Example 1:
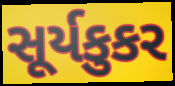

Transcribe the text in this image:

સૂર્યકુકર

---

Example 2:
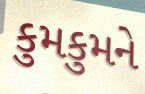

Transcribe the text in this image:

કુમકુમને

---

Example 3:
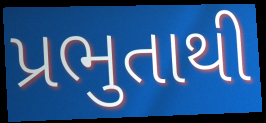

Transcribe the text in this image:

પ્રભુતાથી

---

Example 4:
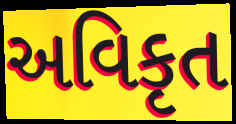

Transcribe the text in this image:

અવિકૃત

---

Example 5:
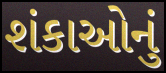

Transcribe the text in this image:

શંકાઓનું